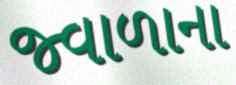
જ્વાળાના